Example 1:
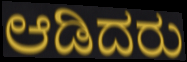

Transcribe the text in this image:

ಆಡಿದರು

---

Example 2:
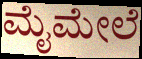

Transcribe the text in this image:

ಮೈಮೇಲೆ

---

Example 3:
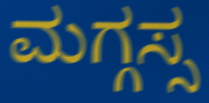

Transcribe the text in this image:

ಮಗ್ಗಸ್ಸ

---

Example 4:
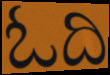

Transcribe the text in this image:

ಓದಿ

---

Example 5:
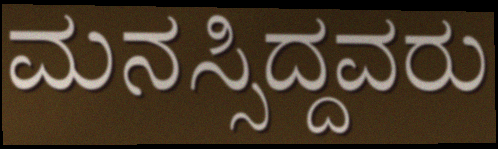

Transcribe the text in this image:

ಮನಸ್ಸಿದ್ದವರು